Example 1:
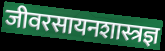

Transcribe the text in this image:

जीवरसायनशास्त्रज्ञ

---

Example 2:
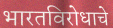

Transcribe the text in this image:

भारतविरोधाचे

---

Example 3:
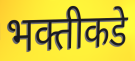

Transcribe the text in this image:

भक्तीकडे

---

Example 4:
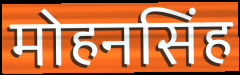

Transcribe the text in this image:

मोहनसिंह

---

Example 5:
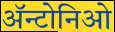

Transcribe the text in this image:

ॲन्टोनिओ